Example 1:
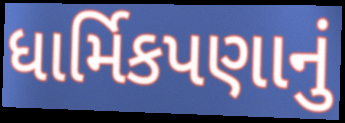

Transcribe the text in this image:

ધાર્મિકપણાનું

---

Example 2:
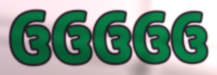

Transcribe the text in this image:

ઉઉઉઉઉ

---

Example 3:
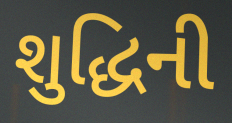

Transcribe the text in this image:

શુદ્ધિની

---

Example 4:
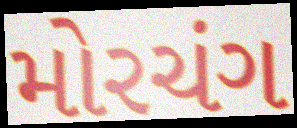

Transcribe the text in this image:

મોરચંગ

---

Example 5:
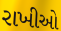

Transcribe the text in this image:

રાખીઓ